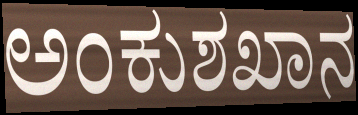
ಅಂಕುಶಖಾನ